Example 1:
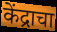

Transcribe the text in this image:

केंद्राचा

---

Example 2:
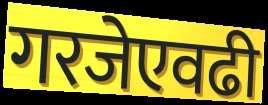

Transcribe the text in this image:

गरजेएवढी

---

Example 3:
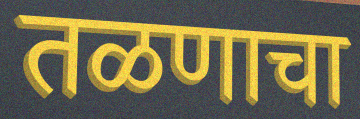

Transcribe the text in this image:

तळणाचा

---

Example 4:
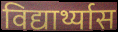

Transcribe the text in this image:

विद्यार्थ्यास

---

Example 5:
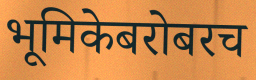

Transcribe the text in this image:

भूमिकेबरोबरच